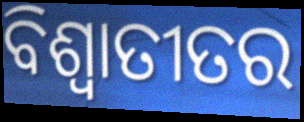
ବିଶ୍ଵାତୀତର